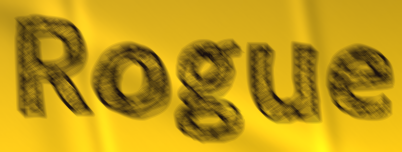
Rogue